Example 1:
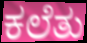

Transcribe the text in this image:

ಕಲೆತು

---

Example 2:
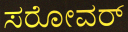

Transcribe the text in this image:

ಸರೋವರ್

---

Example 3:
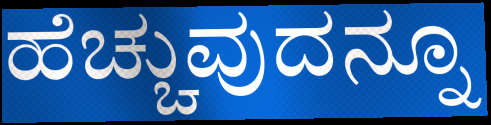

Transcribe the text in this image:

ಹೆಚ್ಚುವುದನ್ನೂ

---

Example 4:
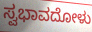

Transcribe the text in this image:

ಸ್ವಭಾವದೋಳು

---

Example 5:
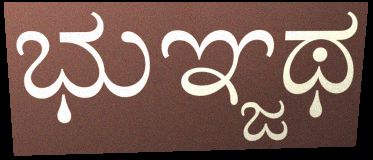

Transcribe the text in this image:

ಭುಞ್ಜಥ